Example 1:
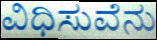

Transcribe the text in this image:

ವಿಧಿಸುವೆನು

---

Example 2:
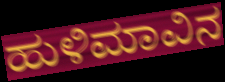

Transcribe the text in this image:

ಹುಳಿಮಾವಿನ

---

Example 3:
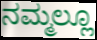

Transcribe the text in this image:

ನಮ್ಮಲ್ಲೂ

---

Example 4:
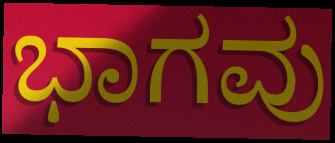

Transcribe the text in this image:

ಭಾಗವು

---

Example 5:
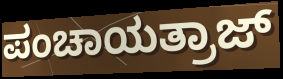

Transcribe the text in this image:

ಪಂಚಾಯತ್ರಾಜ್